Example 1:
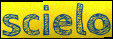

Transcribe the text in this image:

scielo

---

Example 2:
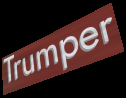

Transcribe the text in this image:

Trumper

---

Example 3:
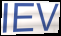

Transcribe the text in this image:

IEV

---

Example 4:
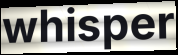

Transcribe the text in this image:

whisper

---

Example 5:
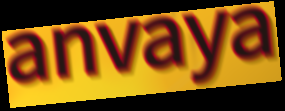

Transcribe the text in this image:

anvaya